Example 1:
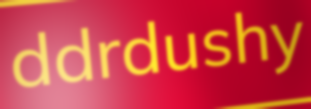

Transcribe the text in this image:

ddrdushy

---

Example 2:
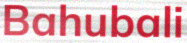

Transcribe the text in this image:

Bahubali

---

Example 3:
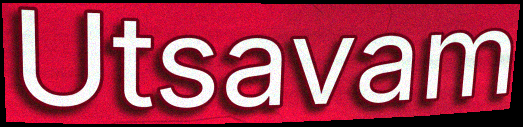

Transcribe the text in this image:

Utsavam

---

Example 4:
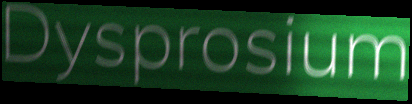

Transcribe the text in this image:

Dysprosium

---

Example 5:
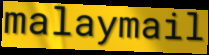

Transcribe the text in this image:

malaymail